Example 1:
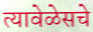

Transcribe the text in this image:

त्यावेळेसचे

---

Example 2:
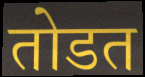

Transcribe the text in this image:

तोडत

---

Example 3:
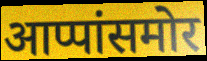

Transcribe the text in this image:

आप्पांसमोर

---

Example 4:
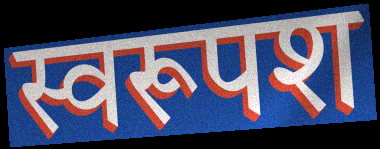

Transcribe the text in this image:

स्वरूपश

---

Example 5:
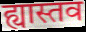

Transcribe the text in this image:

ह्यास्तव